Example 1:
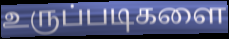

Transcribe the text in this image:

உருப்படிகளை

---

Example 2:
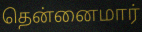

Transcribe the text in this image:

தென்னைமார்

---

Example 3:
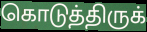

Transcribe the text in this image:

கொடுத்திருக்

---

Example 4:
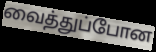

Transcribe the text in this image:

வைத்துப்போன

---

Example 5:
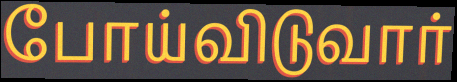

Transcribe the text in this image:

போய்விடுவார்